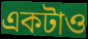
একটাও